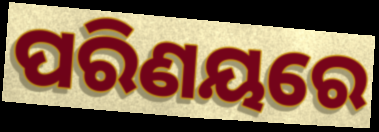
ପରିଣୟରେ